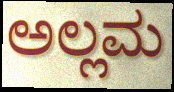
ಅಲ್ಲಮ